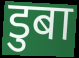
डुबा